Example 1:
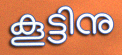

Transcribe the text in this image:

കൂട്ടിനു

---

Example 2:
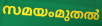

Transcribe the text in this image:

സമയംമുതൽ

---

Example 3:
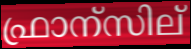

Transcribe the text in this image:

ഫ്രാന്സില്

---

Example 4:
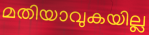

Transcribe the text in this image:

മതിയാവുകയില്ല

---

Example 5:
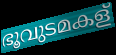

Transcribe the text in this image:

ഭൂവുടമകള്